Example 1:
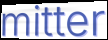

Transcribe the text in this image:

mitter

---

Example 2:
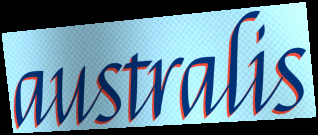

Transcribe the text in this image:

australis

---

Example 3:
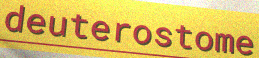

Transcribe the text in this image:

deuterostome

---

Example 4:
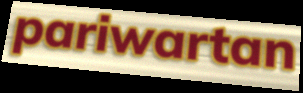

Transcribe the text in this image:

pariwartan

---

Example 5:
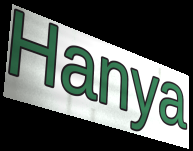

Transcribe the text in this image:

Hanya